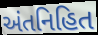
અંતનિહિત